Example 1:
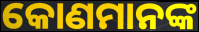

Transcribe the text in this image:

କୋଣମାନଙ୍କ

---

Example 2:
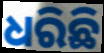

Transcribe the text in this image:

ଧରିଛି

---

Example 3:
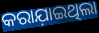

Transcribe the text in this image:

କରାଯ଼ାଇଥିଲା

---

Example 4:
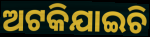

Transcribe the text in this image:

ଅଟକିଯାଇଚି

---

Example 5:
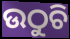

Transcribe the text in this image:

ଉଠୁଚି